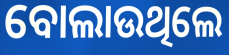
ବୋଲାଉଥିଲେ